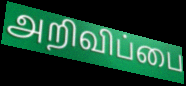
அறிவிப்பை